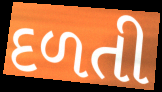
દળતી